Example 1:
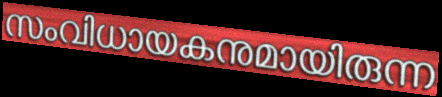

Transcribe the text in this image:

സംവിധായകനുമായിരുന്ന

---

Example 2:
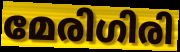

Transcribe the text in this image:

മേരിഗിരി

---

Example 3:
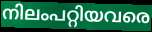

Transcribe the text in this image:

നിലംപറ്റിയവരെ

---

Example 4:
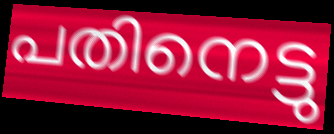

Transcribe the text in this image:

പതിനെട്ടു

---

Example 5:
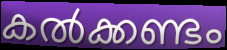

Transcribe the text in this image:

കൽക്കണ്ടം